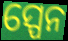
ସ୍ପେନ